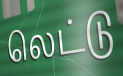
லெட்டு